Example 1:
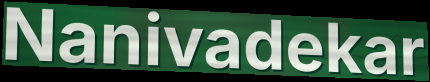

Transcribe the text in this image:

Nanivadekar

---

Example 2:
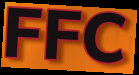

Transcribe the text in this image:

FFC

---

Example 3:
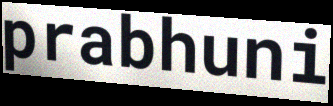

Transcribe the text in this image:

prabhuni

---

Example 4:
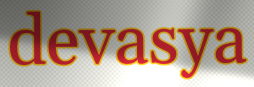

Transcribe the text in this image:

devasya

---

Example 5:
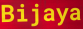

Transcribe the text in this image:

Bijaya